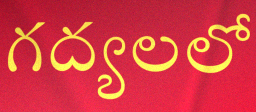
గద్యలలో